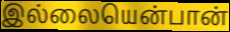
இல்லையென்பான்